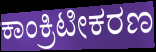
ಕಾಂಕ್ರಿಟೀಕರಣ